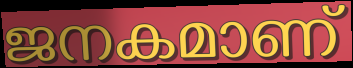
ജനകമാണ്